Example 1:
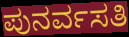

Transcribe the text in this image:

ಪುನರ್ವಸತಿ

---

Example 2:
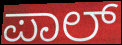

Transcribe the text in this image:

ಪಾಲ್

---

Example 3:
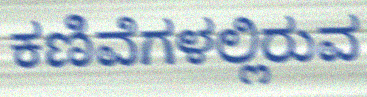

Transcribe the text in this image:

ಕಣಿವೆಗಳಲ್ಲಿರುವ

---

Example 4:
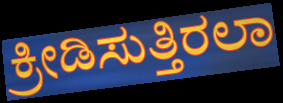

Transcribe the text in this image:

ಕ್ರೀಡಿಸುತ್ತಿರಲಾ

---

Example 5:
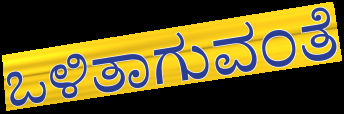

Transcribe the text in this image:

ಒಳಿತಾಗುವಂತೆ